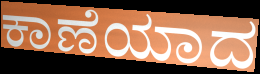
ಕಾಣೆಯಾದ